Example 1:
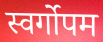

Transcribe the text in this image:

स्वर्गोपम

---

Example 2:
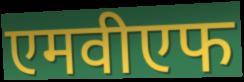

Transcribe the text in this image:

एमवीएफ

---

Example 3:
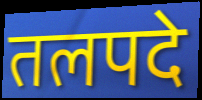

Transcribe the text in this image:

तलपदे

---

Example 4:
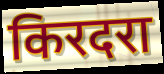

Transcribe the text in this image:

किरदरा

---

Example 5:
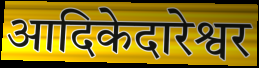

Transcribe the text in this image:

आदिकेदारेश्वर